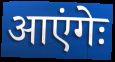
आएंगेः